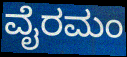
ವೈರಮಂ